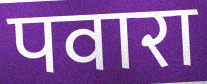
पवारा